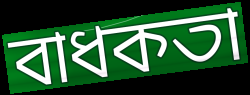
বাধকতা